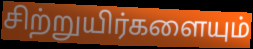
சிற்றுயிர்களையும்